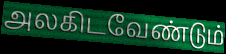
அலகிடவேண்டும்